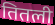
तितली